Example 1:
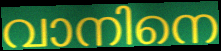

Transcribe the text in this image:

വാനിനെ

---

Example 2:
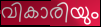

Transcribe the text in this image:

വികാരിയും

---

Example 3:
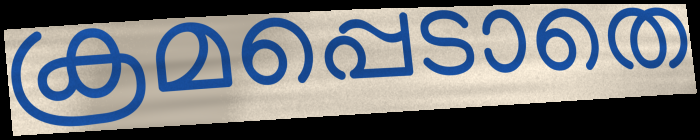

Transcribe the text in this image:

ക്രമപ്പെടാതെ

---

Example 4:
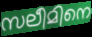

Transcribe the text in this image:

സലീമിനെ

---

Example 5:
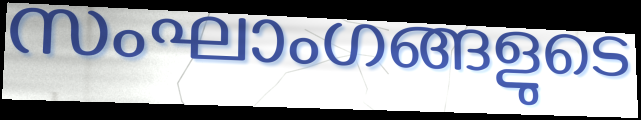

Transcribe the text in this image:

സംഘാംഗങ്ങളുടെ